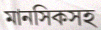
মানসিকসহ